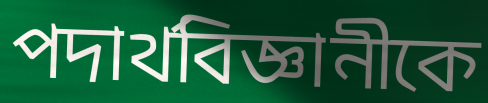
পদার্থবিজ্ঞানীকে